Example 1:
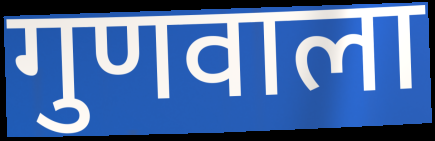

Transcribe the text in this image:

गुणवाला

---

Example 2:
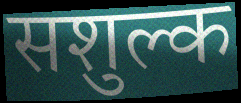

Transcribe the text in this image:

सशुल्क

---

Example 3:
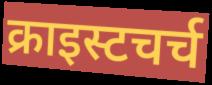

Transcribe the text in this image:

क्राइस्टचर्च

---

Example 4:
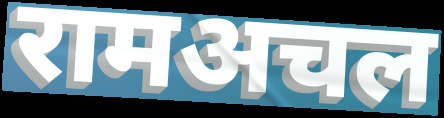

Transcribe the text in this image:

रामअचल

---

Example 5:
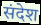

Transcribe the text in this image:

संदेश